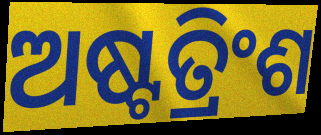
ଅଷ୍ଟତ୍ରିଂଶ